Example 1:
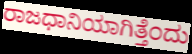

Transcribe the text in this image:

ರಾಜಧಾನಿಯಾಗಿತ್ತೆಂದು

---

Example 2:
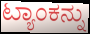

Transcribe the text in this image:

ಟ್ಯಾಂಕನ್ನು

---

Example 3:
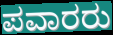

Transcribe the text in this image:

ಪವಾರರು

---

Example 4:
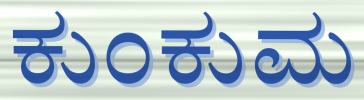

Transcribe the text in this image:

ಕುಂಕುಮ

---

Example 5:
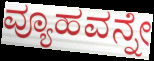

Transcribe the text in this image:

ವ್ಯೂಹವನ್ನೇ